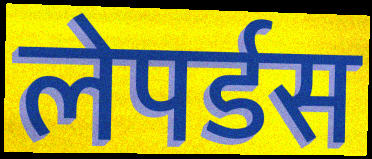
लेपर्डस